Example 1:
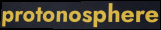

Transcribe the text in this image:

protonosphere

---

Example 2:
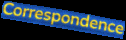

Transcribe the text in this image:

Correspondence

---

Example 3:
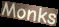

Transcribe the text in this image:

Monks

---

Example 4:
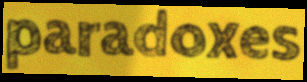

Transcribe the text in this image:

paradoxes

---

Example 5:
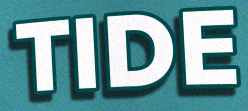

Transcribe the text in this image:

TIDE